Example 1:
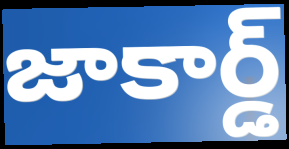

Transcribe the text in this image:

జాకార్డ్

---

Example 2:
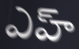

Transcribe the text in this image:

ఎహ్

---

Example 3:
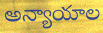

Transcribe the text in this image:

అన్యాయాల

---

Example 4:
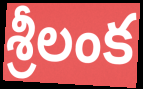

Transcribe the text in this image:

శ్రీలంక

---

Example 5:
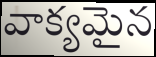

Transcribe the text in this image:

వాక్యమైన